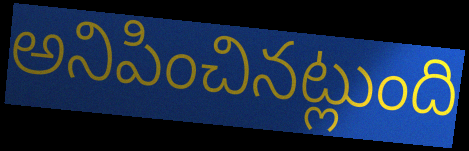
అనిపించినట్లుంది